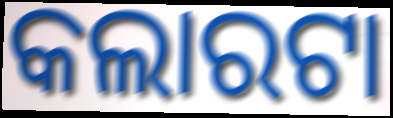
କଲାରଟା